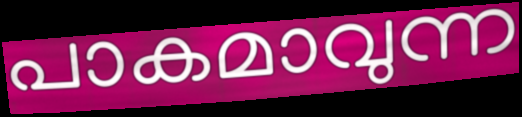
പാകമാവുന്ന